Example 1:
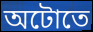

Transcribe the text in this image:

অটোতে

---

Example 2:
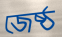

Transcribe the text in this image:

জেষ্ঠ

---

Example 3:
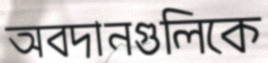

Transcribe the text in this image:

অবদানগুলিকে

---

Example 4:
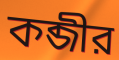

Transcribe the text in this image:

কব্জীর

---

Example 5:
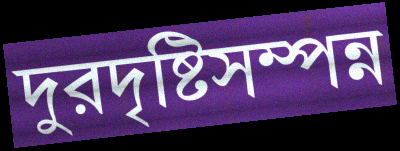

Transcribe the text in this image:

দুরদৃষ্টিসম্পন্ন